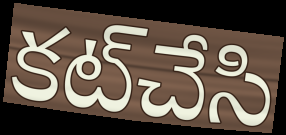
కట్‌చేసి